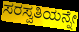
ಸರಸ್ವತಿಯನ್ನೇ